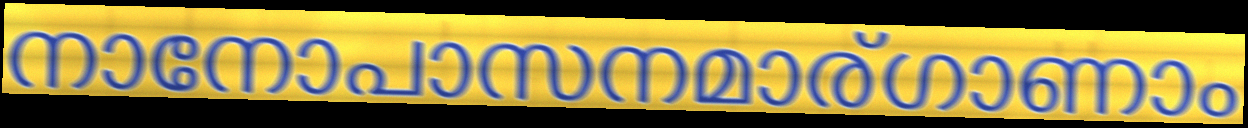
നാനോപാസനമാര്ഗാണാം